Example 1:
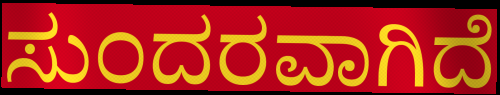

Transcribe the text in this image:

ಸುಂದರವಾಗಿದೆ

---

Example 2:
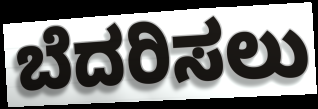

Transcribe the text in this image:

ಬೆದರಿಸಲು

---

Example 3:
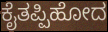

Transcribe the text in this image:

ಕೈತಪ್ಪಿಹೋದ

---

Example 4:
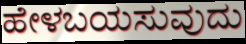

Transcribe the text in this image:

ಹೇಳಬಯಸುವುದು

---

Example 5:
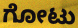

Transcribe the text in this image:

ಗೋಟು